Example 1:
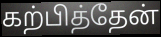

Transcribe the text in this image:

கற்பித்தேன்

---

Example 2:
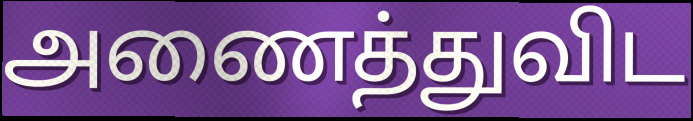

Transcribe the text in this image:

அணைத்துவிட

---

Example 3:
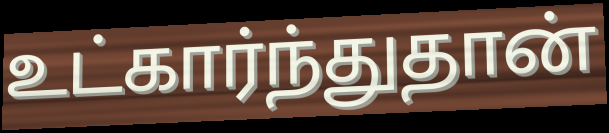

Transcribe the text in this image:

உட்கார்ந்துதான்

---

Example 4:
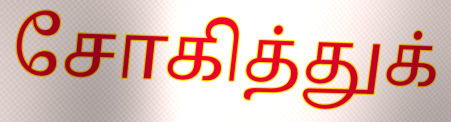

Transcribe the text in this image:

சோகித்துக்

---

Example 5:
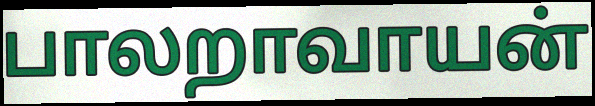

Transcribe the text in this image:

பாலறாவாயன்